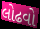
લોઢવો